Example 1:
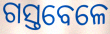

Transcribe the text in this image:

ଗସ୍ତବେଳେ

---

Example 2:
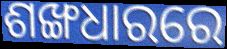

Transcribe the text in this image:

ଶଙ୍ଖଧାରରେ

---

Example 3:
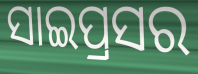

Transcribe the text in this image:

ସାଇପ୍ରସର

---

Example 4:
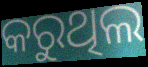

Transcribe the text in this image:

କରୁଥିଲ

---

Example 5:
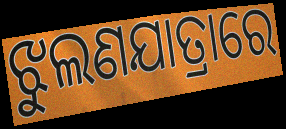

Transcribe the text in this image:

ଝୁଲଣଯାତ୍ରାରେ